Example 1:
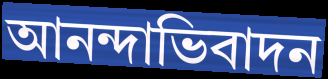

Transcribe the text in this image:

আনন্দাভিবাদন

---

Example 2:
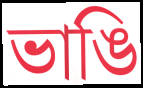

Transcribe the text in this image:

ভাঙি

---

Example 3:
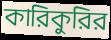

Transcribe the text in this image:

কারিকুরির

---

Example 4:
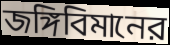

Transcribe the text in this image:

জঙ্গিবিমানের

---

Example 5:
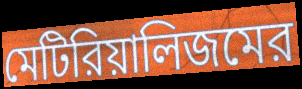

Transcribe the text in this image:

মেটিরিয়ালিজমের